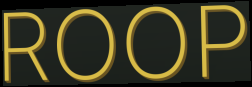
ROOP